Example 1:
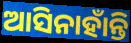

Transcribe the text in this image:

ଆସିନାହାଁନ୍ତି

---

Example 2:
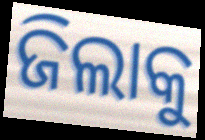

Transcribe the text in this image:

ଜିଲାକୁ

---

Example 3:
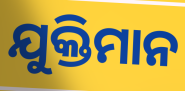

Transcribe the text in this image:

ଯୁକ୍ତିମାନ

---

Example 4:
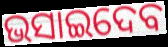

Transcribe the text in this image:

ଭସାଇଦେବ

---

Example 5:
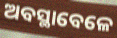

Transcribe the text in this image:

ଅବସ୍ଥାବେଳେ